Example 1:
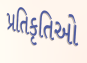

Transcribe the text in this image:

પ્રતિકૃતિઓ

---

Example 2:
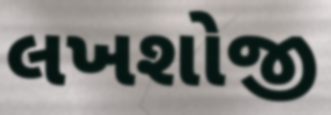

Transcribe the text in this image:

લખશોજી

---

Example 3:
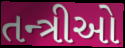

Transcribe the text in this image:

તન્ત્રીઓ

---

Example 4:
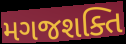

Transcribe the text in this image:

મગજશક્તિ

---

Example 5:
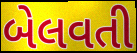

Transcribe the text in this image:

બેલવતી